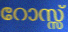
റോസ്സ്